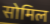
सोमिल